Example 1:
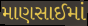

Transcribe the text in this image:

માણસાઈમાં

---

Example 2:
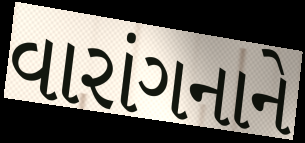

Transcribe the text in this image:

વારાંગનાને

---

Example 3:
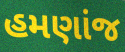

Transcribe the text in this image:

હમણાંજ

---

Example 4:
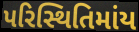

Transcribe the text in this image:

પરિસ્થિતિમાંય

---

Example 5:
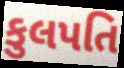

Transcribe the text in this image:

કુલપતિ